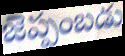
జెప్పంబడు